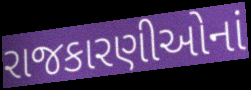
રાજકારણીઓનાં